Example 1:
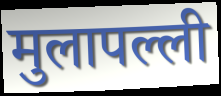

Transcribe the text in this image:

मुलापल्ली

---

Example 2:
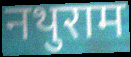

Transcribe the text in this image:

नथुराम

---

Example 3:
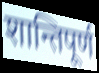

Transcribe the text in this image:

शान्तिपूर्ण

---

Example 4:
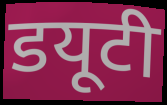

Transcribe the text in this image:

डयूटी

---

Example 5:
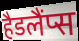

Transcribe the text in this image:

हैडलैंप्स